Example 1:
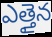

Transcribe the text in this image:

ఎత్తైన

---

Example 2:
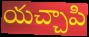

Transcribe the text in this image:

యచ్చాపి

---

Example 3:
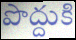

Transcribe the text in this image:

పొద్దుకి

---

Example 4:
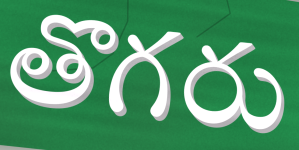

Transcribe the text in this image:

తొగరు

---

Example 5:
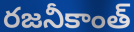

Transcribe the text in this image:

రజనీకాంత్